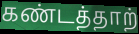
கண்டத்தாற்